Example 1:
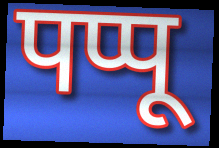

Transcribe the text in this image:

पप्पू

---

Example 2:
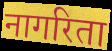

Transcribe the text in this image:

नागरिता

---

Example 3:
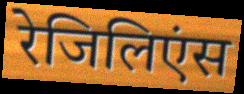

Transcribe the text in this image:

रेजिलिएंस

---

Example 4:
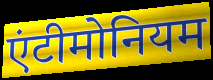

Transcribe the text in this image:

एंटीमोनियम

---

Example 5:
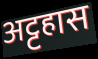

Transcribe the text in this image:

अट्टहास